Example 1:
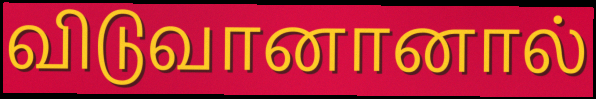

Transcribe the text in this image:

விடுவானானால்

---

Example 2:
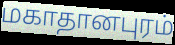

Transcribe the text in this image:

மகாதானபுரம்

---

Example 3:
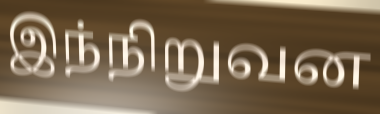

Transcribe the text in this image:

இந்நிறுவன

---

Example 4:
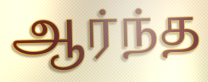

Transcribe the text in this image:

ஆர்ந்த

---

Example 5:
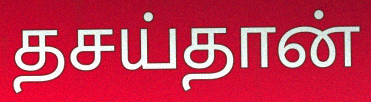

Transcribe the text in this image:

தசய்தான்